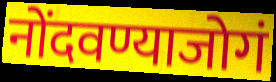
नोंदवण्याजोगं